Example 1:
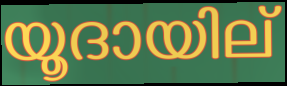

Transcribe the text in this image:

യൂദായില്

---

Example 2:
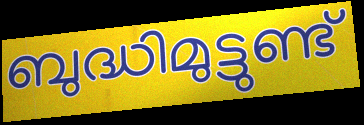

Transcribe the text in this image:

ബുദ്ധിമുട്ടുണ്ട്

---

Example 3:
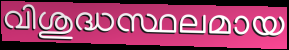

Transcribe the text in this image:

വിശുദ്ധസ്ഥലമായ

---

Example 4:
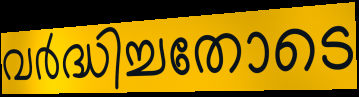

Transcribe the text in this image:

വർദ്ധിച്ചതോടെ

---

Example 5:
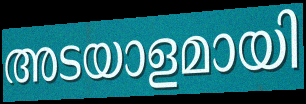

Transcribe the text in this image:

അടയാളമായി